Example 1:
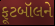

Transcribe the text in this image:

ફૂટબૉલને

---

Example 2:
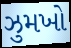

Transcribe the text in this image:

ઝુમખો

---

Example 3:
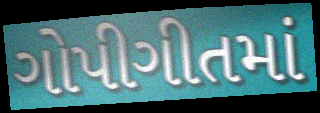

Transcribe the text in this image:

ગોપીગીતમાં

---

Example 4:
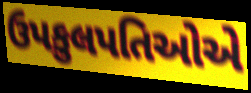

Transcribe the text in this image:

ઉપકુલપતિઓએ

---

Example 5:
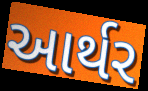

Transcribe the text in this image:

આર્થર